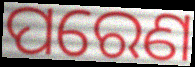
ପରେଣ